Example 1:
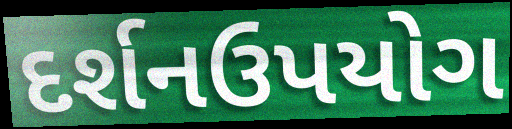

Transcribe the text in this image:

દર્શનઉપયોગ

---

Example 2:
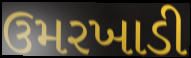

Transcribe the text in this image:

ઉમરખાડી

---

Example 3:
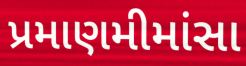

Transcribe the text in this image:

પ્રમાણમીમાંસા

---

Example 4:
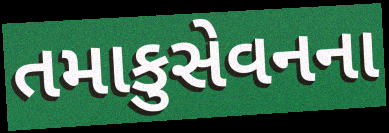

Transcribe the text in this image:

તમાકુસેવનના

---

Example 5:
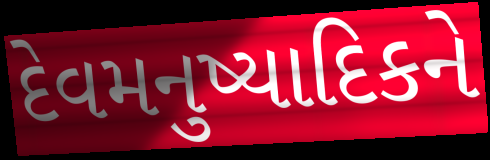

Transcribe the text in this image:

દેવમનુષ્યાદિકને